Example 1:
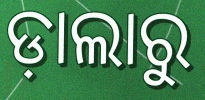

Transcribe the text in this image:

ଡ଼ାଲାରୁ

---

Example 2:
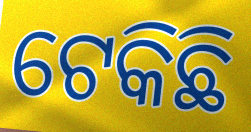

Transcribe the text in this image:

ଟେକିଛି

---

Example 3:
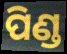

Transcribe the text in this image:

ପିଣ୍ଡ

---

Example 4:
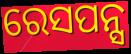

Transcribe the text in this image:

ରେସପନ୍ସ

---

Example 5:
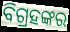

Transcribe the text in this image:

ବିଗ୍ରହଙ୍କର